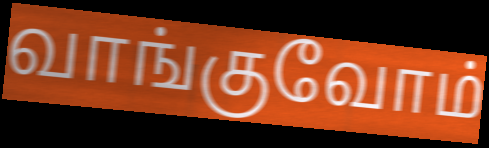
வாங்குவோம்